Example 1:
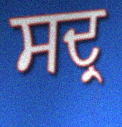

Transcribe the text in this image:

ਸਦ੍ਰ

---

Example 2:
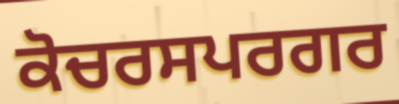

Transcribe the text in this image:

ਕੋਚਰਸਪਰਗਰ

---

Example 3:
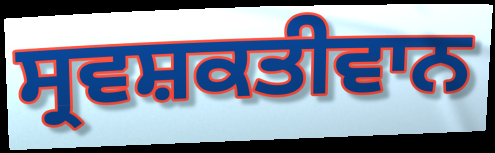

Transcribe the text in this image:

ਸ੍ਰਵਸ਼ਕਤੀਵਾਨ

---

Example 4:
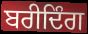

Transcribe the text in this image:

ਬਰੀਦਿੰਗ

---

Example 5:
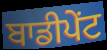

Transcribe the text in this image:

ਬਾਡੀਪੇਂਟ